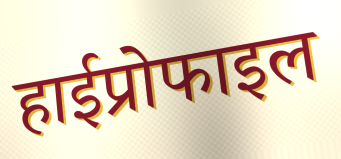
हाईप्रोफाइल